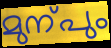
മുന്പും